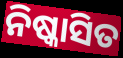
ନିଷ୍କାସିତ